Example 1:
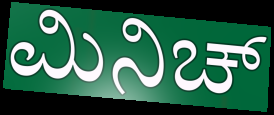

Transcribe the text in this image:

ಮಿನಿಚ್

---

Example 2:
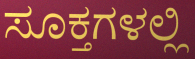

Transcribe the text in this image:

ಸೂಕ್ತಗಳಲ್ಲಿ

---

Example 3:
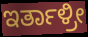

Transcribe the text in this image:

ಇರ್ತಾಳ್ರೀ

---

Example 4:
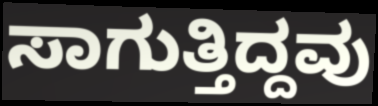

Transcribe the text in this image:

ಸಾಗುತ್ತಿದ್ದವು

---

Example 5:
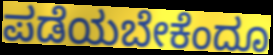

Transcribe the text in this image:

ಪಡೆಯಬೇಕೆಂದೂ